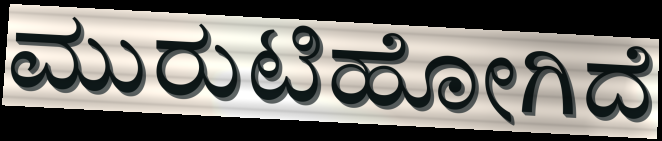
ಮುರುಟಿಹೋಗಿದೆ